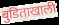
बुडिताखाली